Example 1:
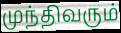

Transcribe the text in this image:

முந்திவரும்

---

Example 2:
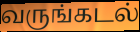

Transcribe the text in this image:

வருங்கடல்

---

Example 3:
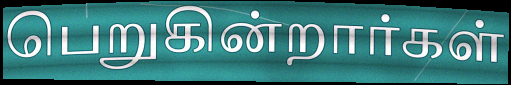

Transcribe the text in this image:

பெறுகின்றார்கள்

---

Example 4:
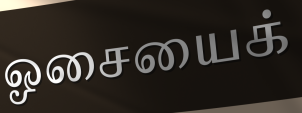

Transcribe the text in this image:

ஓசையைக்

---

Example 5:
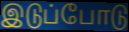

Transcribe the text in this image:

இடுப்போடு